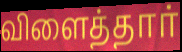
விளைத்தார்